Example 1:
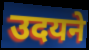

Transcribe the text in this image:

उदयने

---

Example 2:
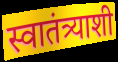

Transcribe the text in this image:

स्वातंत्र्याशी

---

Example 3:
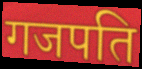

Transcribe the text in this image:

गजपति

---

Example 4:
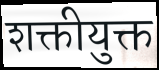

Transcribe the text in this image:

शक्तीयुक्त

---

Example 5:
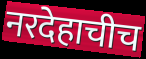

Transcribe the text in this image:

नरदेहाचीच